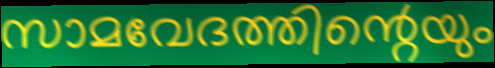
സാമവേദത്തിന്റെയും